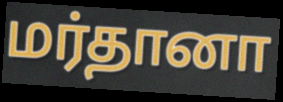
மர்தானா